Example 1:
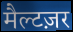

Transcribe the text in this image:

मैल्टज़र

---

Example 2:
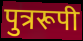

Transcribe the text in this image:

पुत्ररूपी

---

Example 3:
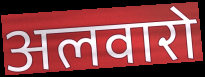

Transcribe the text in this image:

अलवारो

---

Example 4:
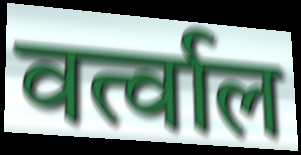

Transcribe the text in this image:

वर्त्वाल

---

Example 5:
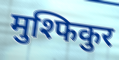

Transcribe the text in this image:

मुश्फिकुर